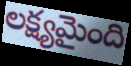
లక్ష్యమైంది